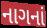
નાગનાં